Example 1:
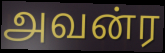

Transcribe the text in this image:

அவன்ர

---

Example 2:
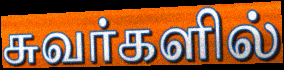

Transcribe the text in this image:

சுவர்களில்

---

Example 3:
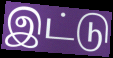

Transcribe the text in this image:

இட்டு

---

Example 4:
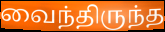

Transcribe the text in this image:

வைந்திருந்த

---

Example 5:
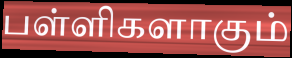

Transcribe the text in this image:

பள்ளிகளாகும்